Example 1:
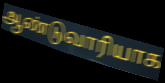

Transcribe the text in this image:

ஆண்டுவாரியாக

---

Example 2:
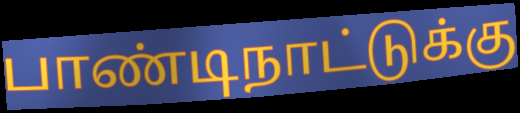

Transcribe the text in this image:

பாண்டிநாட்டுக்கு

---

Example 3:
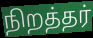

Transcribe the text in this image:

நிறத்தர்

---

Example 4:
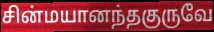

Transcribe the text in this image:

சின்மயானந்தகுருவே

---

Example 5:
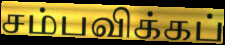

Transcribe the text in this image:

சம்பவிக்கப்